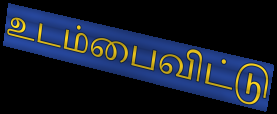
உடம்பைவிட்டு